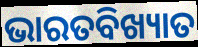
ଭାରତବିଖ୍ୟାତ